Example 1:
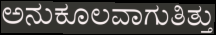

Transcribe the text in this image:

ಅನುಕೂಲವಾಗುತಿತ್ತು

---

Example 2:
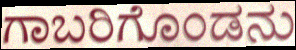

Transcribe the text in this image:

ಗಾಬರಿಗೊಂಡನು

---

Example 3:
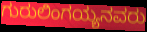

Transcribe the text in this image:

ಗುರುಲಿಂಗಯ್ಯನವರು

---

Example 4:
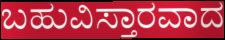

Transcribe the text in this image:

ಬಹುವಿಸ್ತಾರವಾದ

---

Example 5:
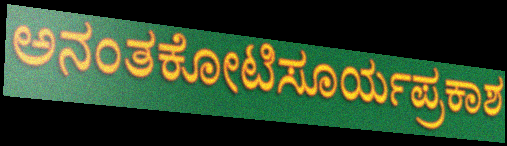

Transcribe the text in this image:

ಅನಂತಕೋಟಿಸೂರ್ಯಪ್ರಕಾಶ